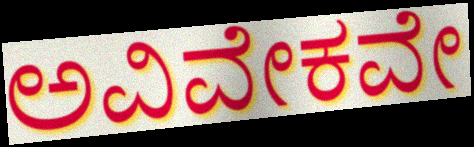
ಅವಿವೇಕವೇ